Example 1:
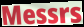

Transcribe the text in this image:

Messrs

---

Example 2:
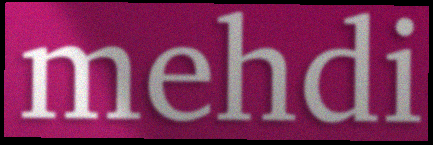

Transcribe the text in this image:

mehdi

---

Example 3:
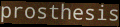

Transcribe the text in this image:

prosthesis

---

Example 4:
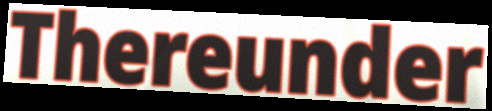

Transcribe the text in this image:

Thereunder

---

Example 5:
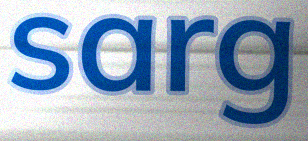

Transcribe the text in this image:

sarg